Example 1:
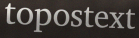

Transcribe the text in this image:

topostext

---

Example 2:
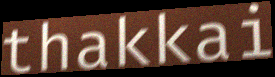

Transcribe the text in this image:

thakkai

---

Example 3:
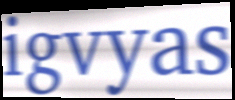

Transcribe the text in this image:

igvyas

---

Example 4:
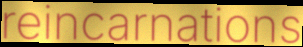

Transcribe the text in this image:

reincarnations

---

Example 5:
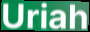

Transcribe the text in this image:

Uriah